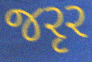
જરૃર